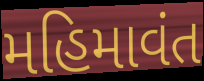
મહિમાવંત